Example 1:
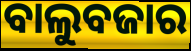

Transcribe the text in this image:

ବାଲୁବଜାର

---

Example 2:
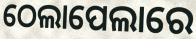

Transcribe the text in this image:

ଠେଲାପେଲାରେ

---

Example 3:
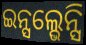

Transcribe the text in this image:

ଇନ୍ସଲ୍ଭେନ୍ସି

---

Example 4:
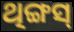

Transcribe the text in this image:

ଥିଙ୍ଗସ୍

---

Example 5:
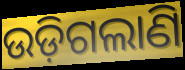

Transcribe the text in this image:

ଉଡ଼ିଗଲାଣି